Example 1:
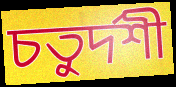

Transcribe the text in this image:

চতুর্দশী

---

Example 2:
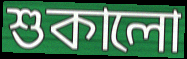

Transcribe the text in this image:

শুকালো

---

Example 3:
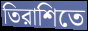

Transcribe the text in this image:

তিরাশিতে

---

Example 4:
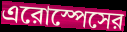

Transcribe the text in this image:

এরোস্পেসের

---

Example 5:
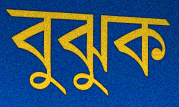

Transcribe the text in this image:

বুঝুক